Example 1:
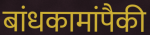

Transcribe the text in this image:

बांधकामांपैकी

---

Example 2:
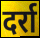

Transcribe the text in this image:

दर्रा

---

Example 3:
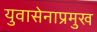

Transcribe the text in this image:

युवासेनाप्रमुख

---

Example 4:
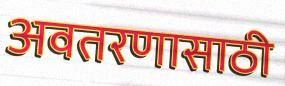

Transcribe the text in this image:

अवतरणासाठी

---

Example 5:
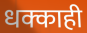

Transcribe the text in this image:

धक्काही